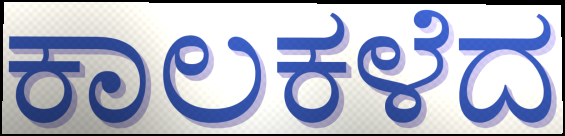
ಕಾಲಕಳೆದ